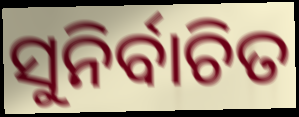
ସୁନିର୍ବାଚିତ